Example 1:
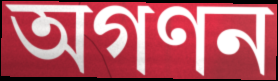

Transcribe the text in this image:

অগণন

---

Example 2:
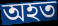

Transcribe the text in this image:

অহত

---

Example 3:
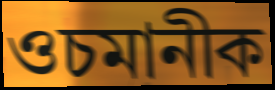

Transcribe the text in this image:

ওচমানীক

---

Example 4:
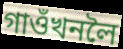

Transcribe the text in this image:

গাওঁখনলৈ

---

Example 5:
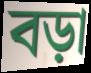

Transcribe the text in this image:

বড়া